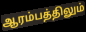
ஆரம்பத்திலும்